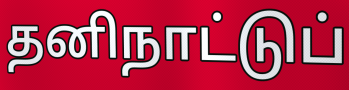
தனிநாட்டுப்